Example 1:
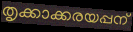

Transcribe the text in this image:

തൃക്കാക്കരയപ്പന്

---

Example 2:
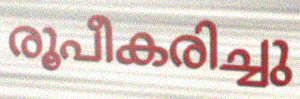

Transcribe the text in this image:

രൂപീകരിച്ചു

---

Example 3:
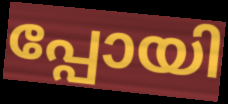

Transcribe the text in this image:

പ്പോയി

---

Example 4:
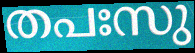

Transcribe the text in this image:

തപഃസു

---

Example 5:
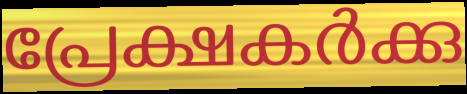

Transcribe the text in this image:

പ്രേക്ഷകർക്കു